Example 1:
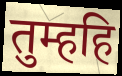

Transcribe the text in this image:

तुम्हहि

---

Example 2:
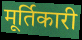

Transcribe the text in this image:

मूर्तिकारी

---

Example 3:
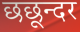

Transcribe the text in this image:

छछून्दर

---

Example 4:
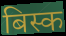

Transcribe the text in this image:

बिस्क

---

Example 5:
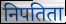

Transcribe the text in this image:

निपतिता